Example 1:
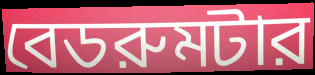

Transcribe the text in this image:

বেডরুমটার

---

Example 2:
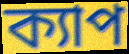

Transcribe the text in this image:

ক্যাপ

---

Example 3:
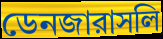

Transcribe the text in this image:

ডেনজারাসলি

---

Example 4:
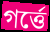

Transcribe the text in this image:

গর্ত্তে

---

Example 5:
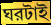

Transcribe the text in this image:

ঘরটাই